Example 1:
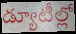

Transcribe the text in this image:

డ్యూటీల్లో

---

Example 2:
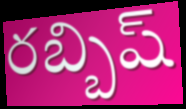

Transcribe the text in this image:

రబ్బిష్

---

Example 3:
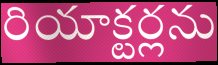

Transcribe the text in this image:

రియాక్టర్లను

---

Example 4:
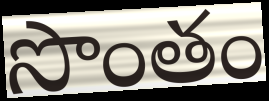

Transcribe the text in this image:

సొంతం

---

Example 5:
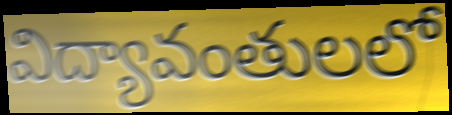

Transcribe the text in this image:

విద్యావంతులలో